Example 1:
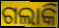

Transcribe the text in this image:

ଗଲାକି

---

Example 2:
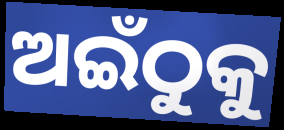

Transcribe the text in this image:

ଅଇଁଠୁକୁ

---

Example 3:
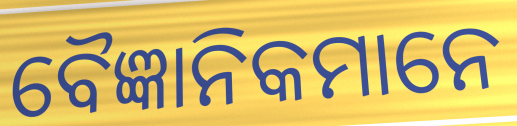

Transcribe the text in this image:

ବୈଜ୍ଞାନିକମାନେ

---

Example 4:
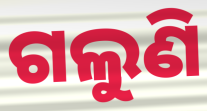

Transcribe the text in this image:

ଗଲୁଣି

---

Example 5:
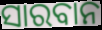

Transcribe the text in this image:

ସାରବାନ